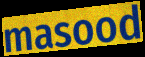
masood